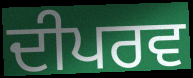
ਦੀਪਰਵ